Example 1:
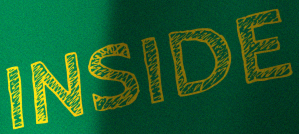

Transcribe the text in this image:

INSIDE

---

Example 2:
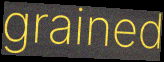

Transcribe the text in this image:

grained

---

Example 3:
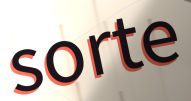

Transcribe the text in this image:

sorte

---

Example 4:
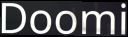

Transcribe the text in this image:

Doomi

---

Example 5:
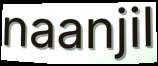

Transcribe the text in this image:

naanjil